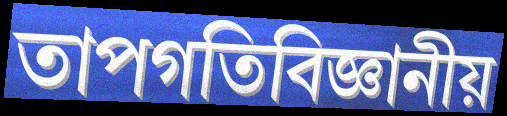
তাপগতিবিজ্ঞানীয়